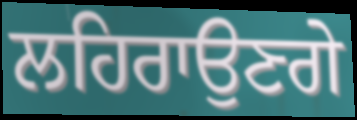
ਲਹਿਰਾਉਣਗੇ